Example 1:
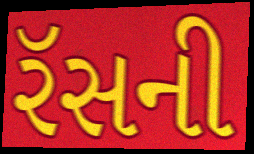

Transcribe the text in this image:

રૅસની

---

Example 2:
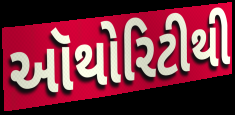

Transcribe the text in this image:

ઑથોરિટીથી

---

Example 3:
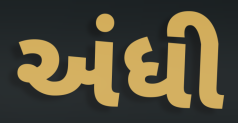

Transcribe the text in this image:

અંધી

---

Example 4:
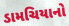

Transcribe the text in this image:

ડામચિયાનો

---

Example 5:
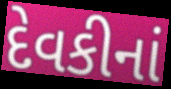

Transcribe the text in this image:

દેવકીનાં